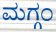
ಮಗ್ಗಂ